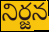
నిర్జన